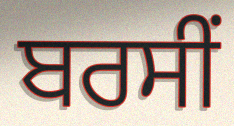
ਬਰਸੀਂ